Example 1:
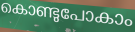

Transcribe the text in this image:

കൊണ്ടുപോകാം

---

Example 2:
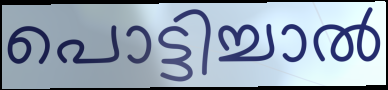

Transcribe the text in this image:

പൊട്ടിച്ചാൽ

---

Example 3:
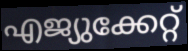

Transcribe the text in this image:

എജ്യുക്കേറ്റ്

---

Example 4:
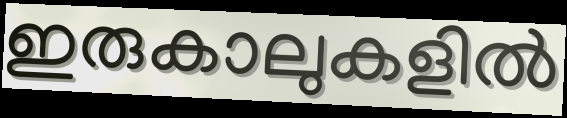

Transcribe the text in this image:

ഇരുകാലുകളിൽ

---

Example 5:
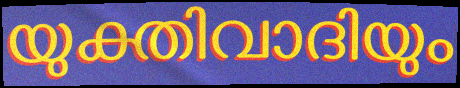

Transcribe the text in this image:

യുക്തിവാദിയും